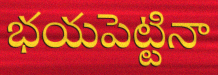
భయపెట్టినా